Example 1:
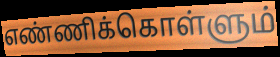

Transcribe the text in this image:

எண்ணிக்கொள்ளும்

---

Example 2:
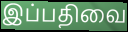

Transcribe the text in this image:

இப்பதிவை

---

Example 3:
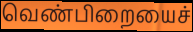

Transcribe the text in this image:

வெண்பிறையைச்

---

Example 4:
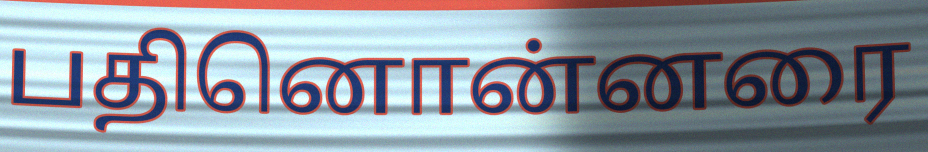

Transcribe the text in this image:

பதினொன்னரை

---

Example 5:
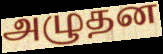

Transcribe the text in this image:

அழுதன